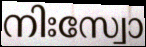
നിഃസ്വോ